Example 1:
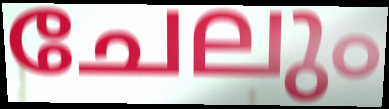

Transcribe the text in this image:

ചേലും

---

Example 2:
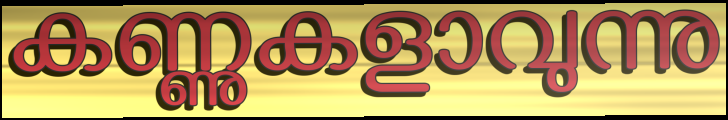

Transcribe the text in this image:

കണ്ണുകളാവുന്നു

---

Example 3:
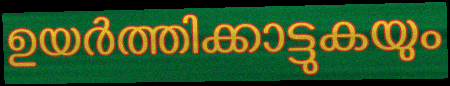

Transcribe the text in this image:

ഉയർത്തിക്കാട്ടുകയും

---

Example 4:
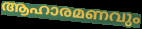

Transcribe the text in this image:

ആഹാരമണവും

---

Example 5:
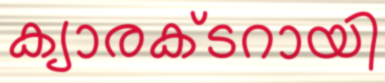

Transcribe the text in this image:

ക്യാരക്ടറായി